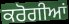
ਕਰੋਗੀਆਂ